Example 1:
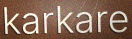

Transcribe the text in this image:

karkare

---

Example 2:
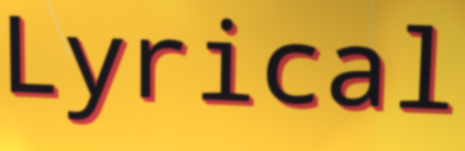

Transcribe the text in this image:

Lyrical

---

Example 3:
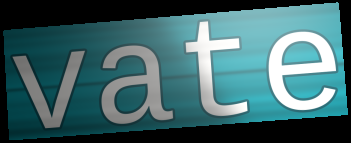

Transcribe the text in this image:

vate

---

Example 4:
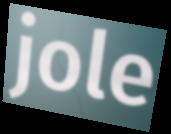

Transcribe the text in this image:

jole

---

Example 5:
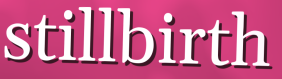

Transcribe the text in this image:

stillbirth